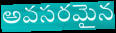
అవసరమైన